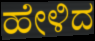
ಹೇಳಿದ